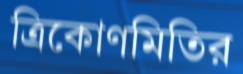
ত্রিকোণমিতির